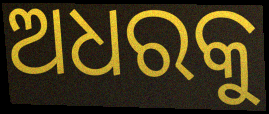
ଅଧରକୁ